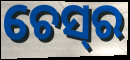
ଚେସ୍‌ର